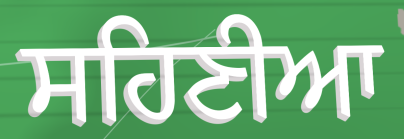
ਸਹਿਣੀਆ